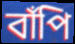
বাঁপি